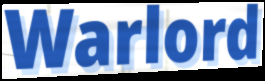
Warlord